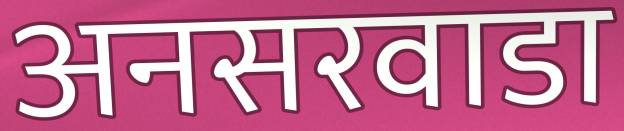
अनसरवाडा